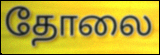
தோலை